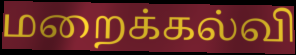
மறைக்கல்வி